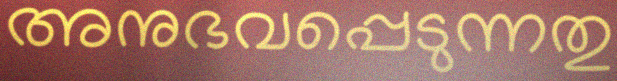
അനുഭവപ്പെടുന്നതു